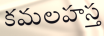
కమలహస్త